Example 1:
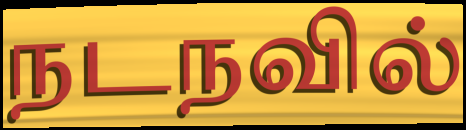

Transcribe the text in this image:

நடநவில்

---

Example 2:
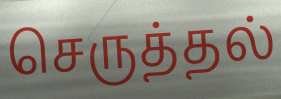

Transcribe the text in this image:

செருத்தல்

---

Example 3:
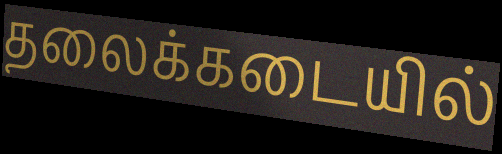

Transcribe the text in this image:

தலைக்கடையில்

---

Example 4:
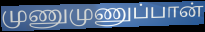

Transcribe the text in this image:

முணுமுணுப்பான்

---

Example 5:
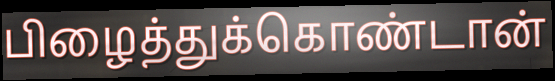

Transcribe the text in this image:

பிழைத்துக்கொண்டான்